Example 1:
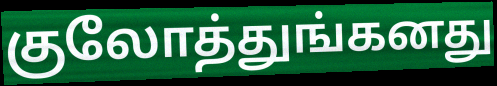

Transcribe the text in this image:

குலோத்துங்கனது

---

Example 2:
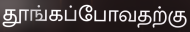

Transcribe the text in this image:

தூங்கப்போவதற்கு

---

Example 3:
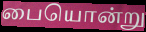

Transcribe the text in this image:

பையொன்று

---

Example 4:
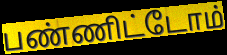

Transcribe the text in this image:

பண்ணிட்டோம்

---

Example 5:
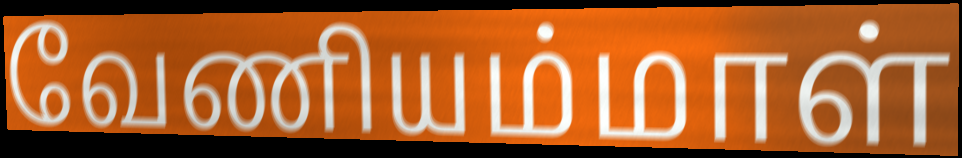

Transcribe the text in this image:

வேணியம்மாள்